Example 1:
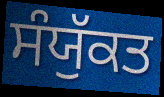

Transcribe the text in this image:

ਸੰਯੁੱਕਤ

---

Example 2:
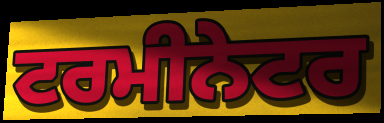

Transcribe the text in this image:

ਟਰਮੀਨੇਟਰ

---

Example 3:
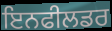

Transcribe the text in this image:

ਇਨਫੀਲਡਰ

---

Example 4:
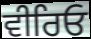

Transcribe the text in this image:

ਵੀਰਿਓ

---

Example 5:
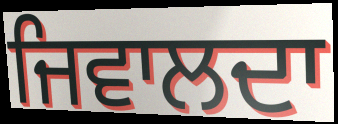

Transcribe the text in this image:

ਜਿਵਾਲਦਾ